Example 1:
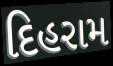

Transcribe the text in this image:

દિહરામ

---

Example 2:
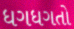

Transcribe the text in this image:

ધગધગતો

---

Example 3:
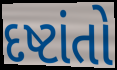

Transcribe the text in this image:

દષ્ટાંતો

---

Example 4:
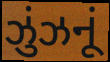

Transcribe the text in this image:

ઝુંઝનૂં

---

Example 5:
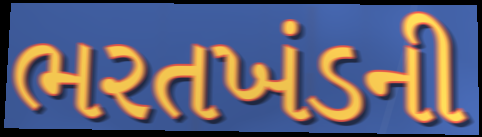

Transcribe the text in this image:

ભરતખંડની